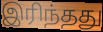
இரிந்தது